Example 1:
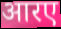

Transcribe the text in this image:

आरए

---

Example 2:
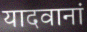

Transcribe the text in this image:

यादवानां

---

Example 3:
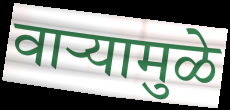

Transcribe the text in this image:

वाऱ्यामुळे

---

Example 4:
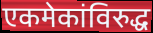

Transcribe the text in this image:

एकमेकांविरुद्ध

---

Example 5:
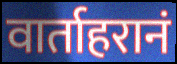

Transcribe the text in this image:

वार्ताहरानं